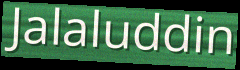
Jalaluddin